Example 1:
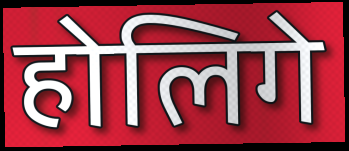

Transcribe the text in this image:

होलिगे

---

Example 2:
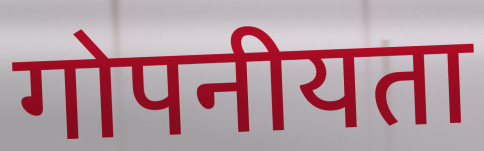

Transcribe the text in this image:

गोपनीयता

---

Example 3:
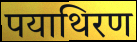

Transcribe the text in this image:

पयाथिरण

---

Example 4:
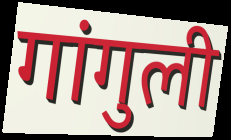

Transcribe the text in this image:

गांगुली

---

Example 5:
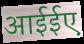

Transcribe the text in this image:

आईईए